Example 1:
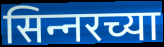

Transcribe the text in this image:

सिन्नरच्या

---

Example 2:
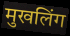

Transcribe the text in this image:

मुखलिंग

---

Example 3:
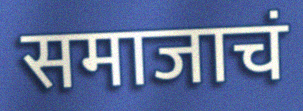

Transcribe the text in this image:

समाजाचं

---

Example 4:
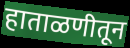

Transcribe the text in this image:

हाताळणीतून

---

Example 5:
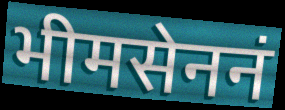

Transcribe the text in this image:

भीमसेननं